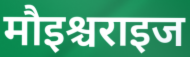
मौइश्चराइज